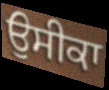
ਉਸੀਕਾ